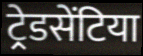
ट्रेडसेंटिया